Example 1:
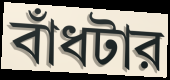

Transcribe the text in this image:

বাঁধটার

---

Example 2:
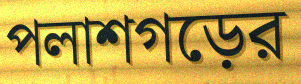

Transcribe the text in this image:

পলাশগড়ের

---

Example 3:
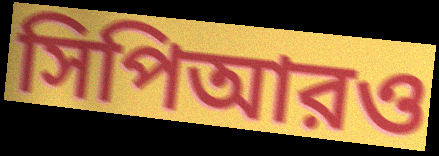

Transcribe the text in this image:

সিপিআরও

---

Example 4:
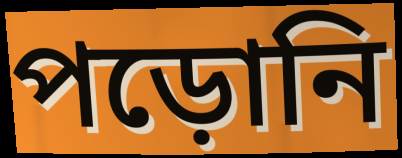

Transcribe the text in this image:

পড়োনি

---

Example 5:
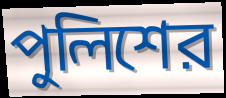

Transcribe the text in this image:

পুলিশের